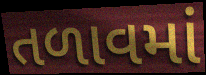
તળાવમાં